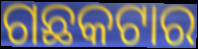
ଗଛକଟାର